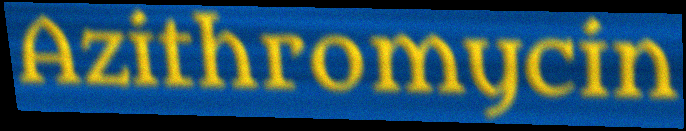
Azithromycin